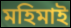
মহিমাই